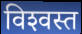
विश्‍वस्त